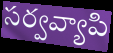
సర్వవ్యాపి